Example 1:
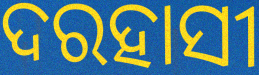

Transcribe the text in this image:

ଦରହାସୀ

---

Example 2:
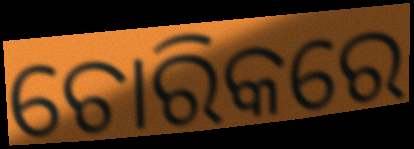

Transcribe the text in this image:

ଚୋରିକରେ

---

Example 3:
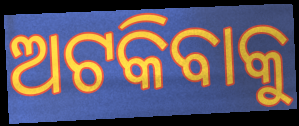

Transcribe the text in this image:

ଅଟକିବାକୁ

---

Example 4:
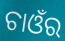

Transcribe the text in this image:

ଚାଓଁର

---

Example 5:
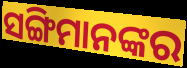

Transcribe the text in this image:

ସଙ୍ଗିମାନଙ୍କର